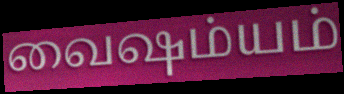
வைஷம்யம்